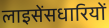
लाइसेंसधारियों